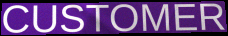
CUSTOMER